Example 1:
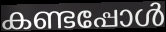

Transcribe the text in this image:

കണ്ടപ്പോൾ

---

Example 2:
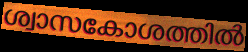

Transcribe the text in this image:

ശ്വാസകോശത്തിൽ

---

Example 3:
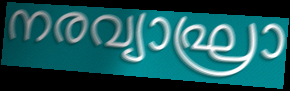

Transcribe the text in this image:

നരവ്യാഘ്രാ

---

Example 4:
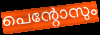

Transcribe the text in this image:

പെന്റോസും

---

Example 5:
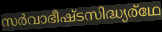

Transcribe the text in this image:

സർവാഭീഷ്ടസിദ്ധ്യര്ഥേ